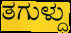
ತಗುಳ್ದು